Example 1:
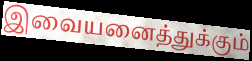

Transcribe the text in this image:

இவையனைத்துக்கும்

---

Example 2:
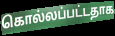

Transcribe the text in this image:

கொல்லப்பட்டதாக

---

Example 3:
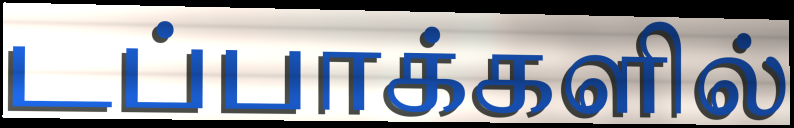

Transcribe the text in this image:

டப்பாக்களில்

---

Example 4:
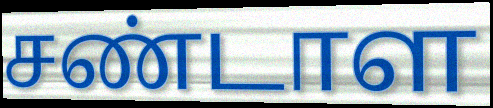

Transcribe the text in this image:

சண்டாள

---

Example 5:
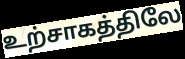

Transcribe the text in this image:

உற்சாகத்திலே